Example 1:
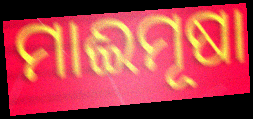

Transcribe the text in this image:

ମାଈମୂଷା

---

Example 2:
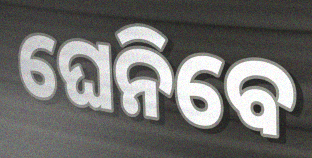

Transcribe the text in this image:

ଘେନିବେ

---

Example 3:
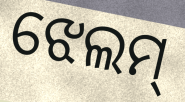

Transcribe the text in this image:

ଝେଲମ୍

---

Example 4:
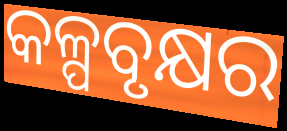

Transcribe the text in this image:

କଳ୍ପବୃକ୍ଷର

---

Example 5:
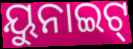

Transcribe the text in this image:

ୟୁନାଇଟ୍